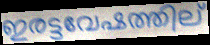
ഇരട്ടവേഷത്തില്